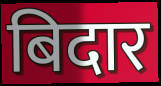
बिदार